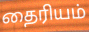
தைரியம்